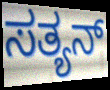
ಸತ್ಯನ್